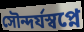
সৌন্দর্যস্বপ্নে